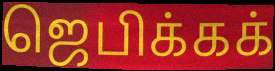
ஜெபிக்கக்